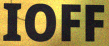
IOFF